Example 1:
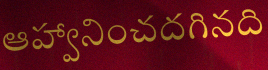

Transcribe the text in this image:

ఆహ్వానించదగినది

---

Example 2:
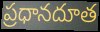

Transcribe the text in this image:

ప్రధానదూత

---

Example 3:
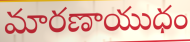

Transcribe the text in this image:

మారణాయుధం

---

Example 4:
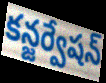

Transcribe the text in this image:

కన్జర్వేషన్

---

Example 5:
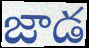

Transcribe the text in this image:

జాడ